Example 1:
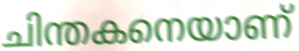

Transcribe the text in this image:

ചിന്തകനെയാണ്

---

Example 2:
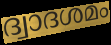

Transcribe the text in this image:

ദ്വാദശമം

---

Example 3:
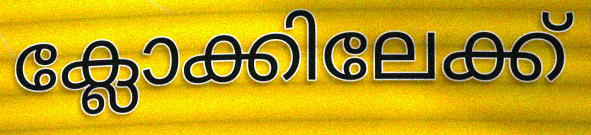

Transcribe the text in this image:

ക്ലോക്കിലേക്ക്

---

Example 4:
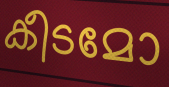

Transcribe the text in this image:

കീടമോ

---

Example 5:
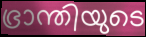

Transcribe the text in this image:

ഭ്രാന്തിയുടെ